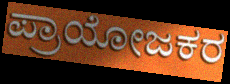
ಪ್ರಾಯೋಜಕರ